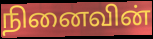
நினைவின்